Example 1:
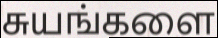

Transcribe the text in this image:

சுயங்களை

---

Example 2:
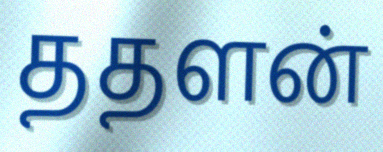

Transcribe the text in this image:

ததளன்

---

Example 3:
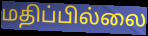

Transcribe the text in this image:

மதிப்பில்லை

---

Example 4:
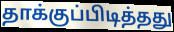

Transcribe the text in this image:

தாக்குப்பிடித்தது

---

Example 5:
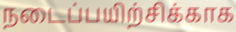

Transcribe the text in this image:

நடைப்பயிற்சிக்காக